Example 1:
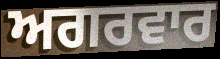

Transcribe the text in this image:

ਅਗਰਵਾਰ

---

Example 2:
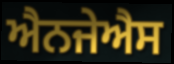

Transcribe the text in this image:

ਐਨਜੇਐਸ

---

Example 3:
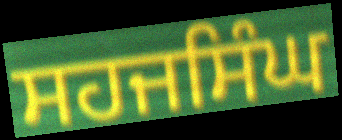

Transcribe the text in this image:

ਸਹਜਸਿੰਘ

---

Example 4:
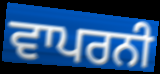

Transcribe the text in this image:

ਵਾਪਰਨੀ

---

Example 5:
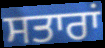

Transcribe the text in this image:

ਸਤਾਰਾਂ